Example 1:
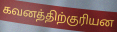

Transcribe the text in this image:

கவனத்திற்குரியன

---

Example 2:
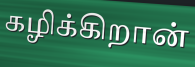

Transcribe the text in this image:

கழிக்கிறான்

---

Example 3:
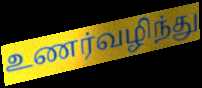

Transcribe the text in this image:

உணர்வழிந்து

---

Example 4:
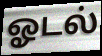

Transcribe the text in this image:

ஓடல்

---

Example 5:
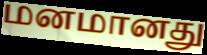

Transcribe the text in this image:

மனமானது